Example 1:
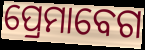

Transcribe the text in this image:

ପ୍ରେମାବେଗ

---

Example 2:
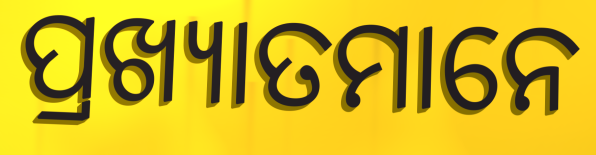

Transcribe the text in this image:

ପ୍ରଖ୍ୟାତମାନେ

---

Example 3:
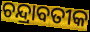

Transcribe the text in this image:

ଚନ୍ଦ୍ରାବତୀକ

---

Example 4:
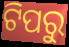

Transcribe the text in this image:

ଟିପରୁ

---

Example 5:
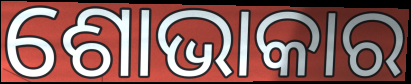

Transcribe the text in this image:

ଶୋଭାକାର